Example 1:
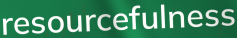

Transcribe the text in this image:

resourcefulness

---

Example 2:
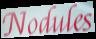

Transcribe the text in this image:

Nodules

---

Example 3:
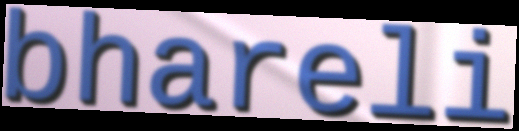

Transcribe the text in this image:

bhareli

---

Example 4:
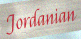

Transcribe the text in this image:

Jordanian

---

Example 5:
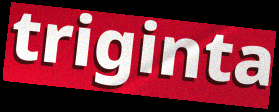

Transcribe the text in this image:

triginta